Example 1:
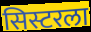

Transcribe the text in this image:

सिस्टरला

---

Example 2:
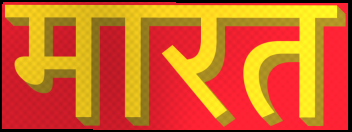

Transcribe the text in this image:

मारत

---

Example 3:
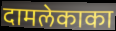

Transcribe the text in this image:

दामलेकाका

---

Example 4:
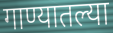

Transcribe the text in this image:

गाण्यातल्या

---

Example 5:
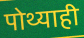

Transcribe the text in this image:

पोथ्याही